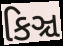
કિઞ્ચ